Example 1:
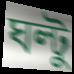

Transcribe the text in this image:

ঘল্টু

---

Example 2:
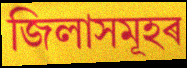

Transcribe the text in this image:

জিলাসমূহৰ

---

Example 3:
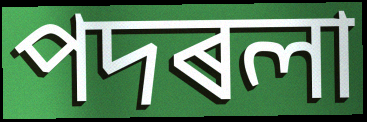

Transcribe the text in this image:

পদৰলা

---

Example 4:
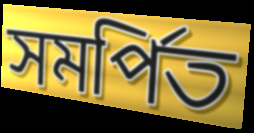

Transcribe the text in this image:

সমৰ্পিত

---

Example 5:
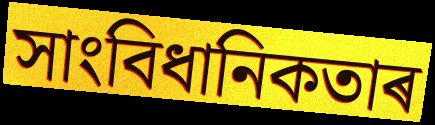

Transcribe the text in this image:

সাংবিধানিকতাৰ